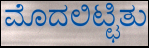
ಮೊದಲಿಟ್ಟಿತು